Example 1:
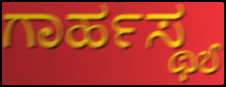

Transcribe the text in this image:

ಗಾರ್ಹಸ್ಥ್ಯ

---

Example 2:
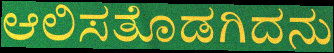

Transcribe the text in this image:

ಆಲಿಸತೊಡಗಿದನು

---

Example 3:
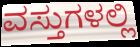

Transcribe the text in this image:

ವಸ್ತುಗಳಲ್ಲಿ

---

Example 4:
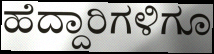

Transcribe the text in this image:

ಹೆದ್ದಾರಿಗಳಿಗೂ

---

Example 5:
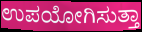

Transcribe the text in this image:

ಉಪಯೋಗಿಸುತ್ತಾ